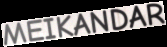
MEIKANDAR